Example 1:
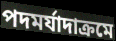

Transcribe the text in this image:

পদমর্যাদাক্রমে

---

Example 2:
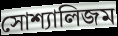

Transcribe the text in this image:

সোশ্যালিজম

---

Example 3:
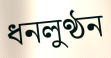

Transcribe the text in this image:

ধনলুণ্ঠন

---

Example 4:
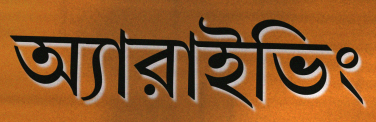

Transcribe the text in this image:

অ্যারাইভিং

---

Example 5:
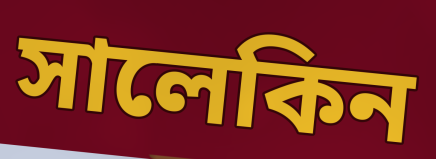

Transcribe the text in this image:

সালেকিন